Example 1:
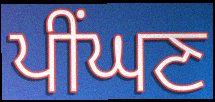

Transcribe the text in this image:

ਪੀਂਘਣ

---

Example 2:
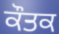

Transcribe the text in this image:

ਕੌਤਕ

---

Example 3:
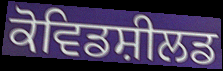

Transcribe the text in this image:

ਕੋਵਿਡਸ਼ੀਲਡ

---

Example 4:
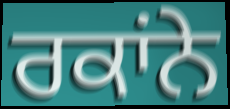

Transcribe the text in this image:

ਰਕਾਂਨੇ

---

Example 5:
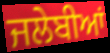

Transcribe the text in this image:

ਜਲੇਬੀਆਂ